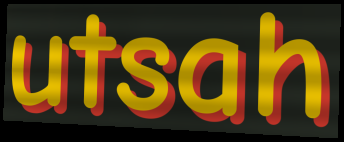
utsah